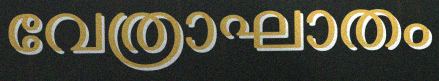
വേത്രാഘാതം